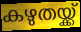
കഴുതയ്ക്ക്